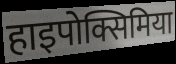
हाइपोक्सिमिया